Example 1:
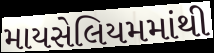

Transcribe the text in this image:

માયસેલિયમમાંથી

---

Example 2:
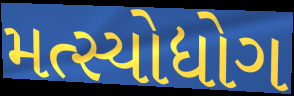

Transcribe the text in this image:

મત્સ્યોદ્યોગ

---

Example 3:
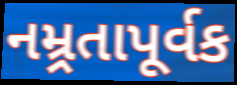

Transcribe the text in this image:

નમ્ર્રતાપૂર્વક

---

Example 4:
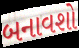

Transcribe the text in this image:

બનાવશો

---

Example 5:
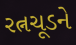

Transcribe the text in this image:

રત્નચૂડને